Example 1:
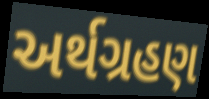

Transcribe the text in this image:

અર્થગ્રહણ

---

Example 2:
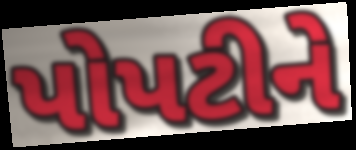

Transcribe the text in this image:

પોપટીને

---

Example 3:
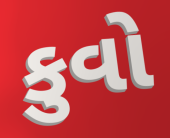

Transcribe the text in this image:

કુવો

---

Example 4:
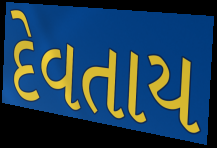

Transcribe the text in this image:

દેવતાય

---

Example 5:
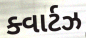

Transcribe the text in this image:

ક્વાર્ટઝ